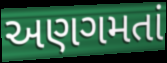
અણગમતાં